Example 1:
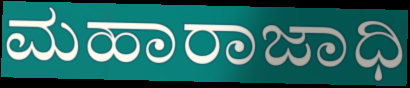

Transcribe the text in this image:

ಮಹಾರಾಜಾಧಿ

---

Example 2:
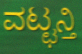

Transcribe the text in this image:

ವಟ್ಟನ್ತಿ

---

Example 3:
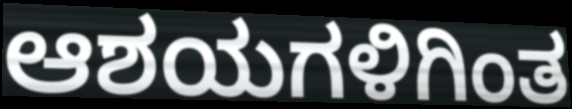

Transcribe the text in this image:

ಆಶಯಗಳಿಗಿಂತ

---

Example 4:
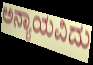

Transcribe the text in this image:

ಅನ್ಯಾಯವಿದು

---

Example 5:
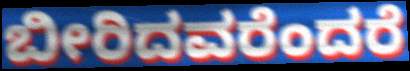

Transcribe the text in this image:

ಬೀರಿದವರೆಂದರೆ